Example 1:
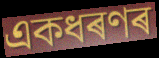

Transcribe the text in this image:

একধৰণৰ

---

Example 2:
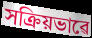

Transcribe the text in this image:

সক্ৰিয়ভাৱে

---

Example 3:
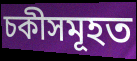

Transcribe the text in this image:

চকীসমূহত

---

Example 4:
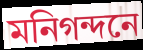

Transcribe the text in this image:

মনিগন্দনে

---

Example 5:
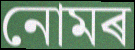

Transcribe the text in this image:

নোমৰ